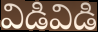
విడివిడి